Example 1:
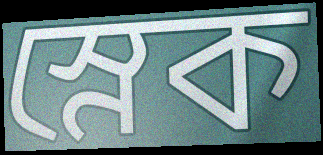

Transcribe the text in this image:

স্নেক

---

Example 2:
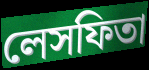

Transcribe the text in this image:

লেসফিতা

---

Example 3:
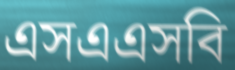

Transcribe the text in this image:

এসএএসবি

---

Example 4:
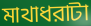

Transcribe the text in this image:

মাথাধরাটা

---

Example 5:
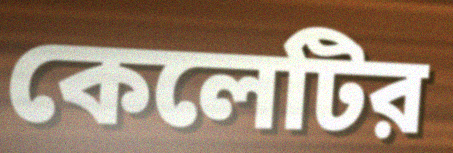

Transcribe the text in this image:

কেলেটির